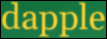
dapple